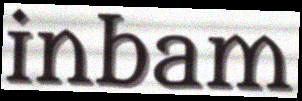
inbam